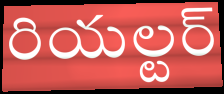
రియల్టర్